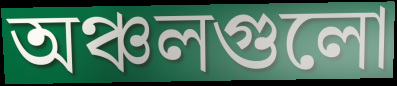
অঞ্চলগুলো